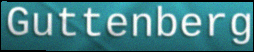
Guttenberg